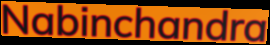
Nabinchandra